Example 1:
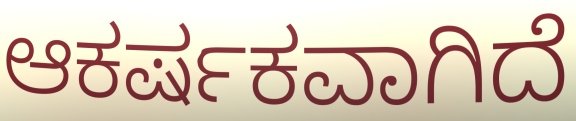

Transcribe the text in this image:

ಆಕರ್ಷಕವಾಗಿದೆ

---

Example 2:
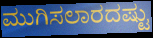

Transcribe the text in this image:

ಮುಗಿಸಲಾರದಷ್ಟು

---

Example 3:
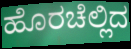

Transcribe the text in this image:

ಹೊರಚೆಲ್ಲಿದ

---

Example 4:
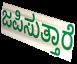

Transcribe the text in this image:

ಜಪಿಸುತ್ತಾರೆ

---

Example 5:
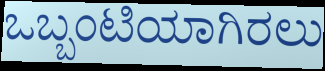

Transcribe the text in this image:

ಒಬ್ಬಂಟಿಯಾಗಿರಲು